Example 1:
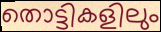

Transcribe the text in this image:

തൊട്ടികളിലും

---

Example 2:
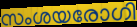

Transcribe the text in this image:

സംശയരോഗി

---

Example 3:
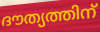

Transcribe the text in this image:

ദൗത്യത്തിന്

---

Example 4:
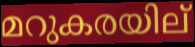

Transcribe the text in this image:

മറുകരയില്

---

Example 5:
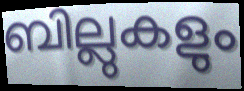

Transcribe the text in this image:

ബില്ലുകളും